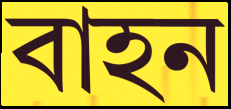
বাহন